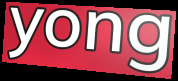
yong